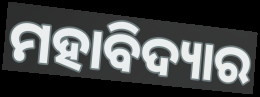
ମହାବିଦ୍ୟାର